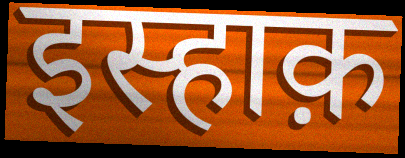
इस्हाक़